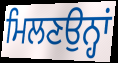
ਮਿਲਣਉਨ੍ਹਾਂ